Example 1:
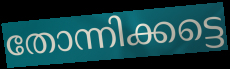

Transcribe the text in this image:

തോന്നിക്കട്ടെ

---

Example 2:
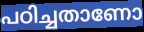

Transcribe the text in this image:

പഠിച്ചതാണോ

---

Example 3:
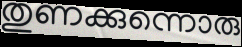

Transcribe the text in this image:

തുണക്കുന്നൊരു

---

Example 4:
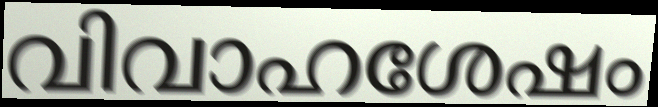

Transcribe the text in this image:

വിവാഹശേഷം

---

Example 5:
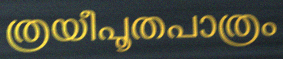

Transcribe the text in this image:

ത്രയീപൂതപാത്രം